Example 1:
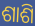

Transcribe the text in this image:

ଶାଶି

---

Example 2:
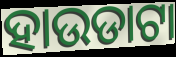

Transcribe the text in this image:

ହାଉଡାଟା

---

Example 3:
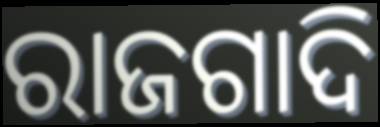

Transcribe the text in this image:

ରାଜଗାଦି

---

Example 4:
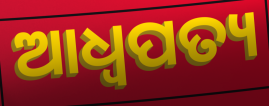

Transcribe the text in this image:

ଆଧ୍ଵପତ୍ୟ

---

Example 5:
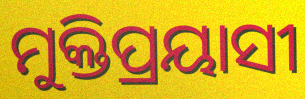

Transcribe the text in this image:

ମୁକ୍ତିପ୍ରୟାସୀ